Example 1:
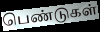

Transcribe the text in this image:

பெண்டுகள்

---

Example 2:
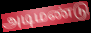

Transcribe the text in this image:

அடிமண்டு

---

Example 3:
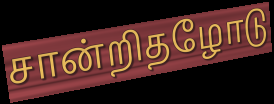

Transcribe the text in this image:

சான்றிதழோடு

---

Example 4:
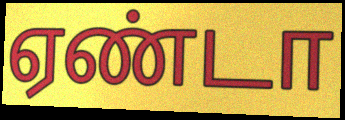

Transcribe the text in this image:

ஏண்டா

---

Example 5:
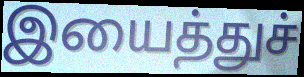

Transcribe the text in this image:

இயைத்துச்